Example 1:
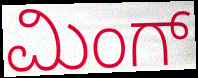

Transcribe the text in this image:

ಮಿಂಗ್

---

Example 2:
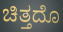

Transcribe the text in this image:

ಚಿತ್ತದೊ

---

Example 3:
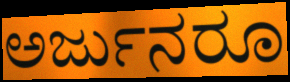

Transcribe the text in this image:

ಅರ್ಜುನರೂ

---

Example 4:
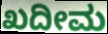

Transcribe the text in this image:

ಖದೀಮ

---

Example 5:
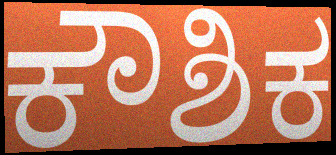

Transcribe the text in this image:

ಕೌಶಿಕ